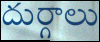
దుర్గాలు